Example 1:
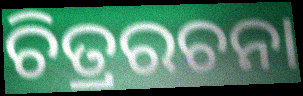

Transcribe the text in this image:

ଚିତ୍ରରଚନା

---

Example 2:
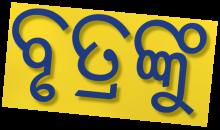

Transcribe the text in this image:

ବୃତ୍ରଙ୍କୁ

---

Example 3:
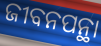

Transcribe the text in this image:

ଜୀବନପନ୍ଥା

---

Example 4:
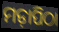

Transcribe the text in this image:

ମଡ଼ାପିଠା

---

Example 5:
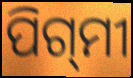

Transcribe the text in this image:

ପିଗ୍‌ମୀ